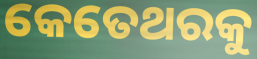
କେତେଥରକୁ